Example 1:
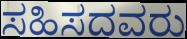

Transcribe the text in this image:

ಸಹಿಸದವರು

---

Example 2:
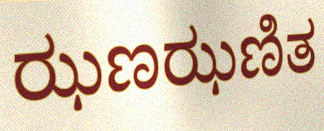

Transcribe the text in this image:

ಝಣಝಣಿತ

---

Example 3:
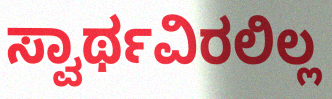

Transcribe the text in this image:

ಸ್ವಾರ್ಥವಿರಲಿಲ್ಲ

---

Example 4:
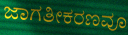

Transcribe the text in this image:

ಜಾಗತೀಕರಣವೂ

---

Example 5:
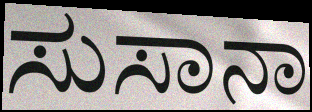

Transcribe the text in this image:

ಸುಸಾನಾ